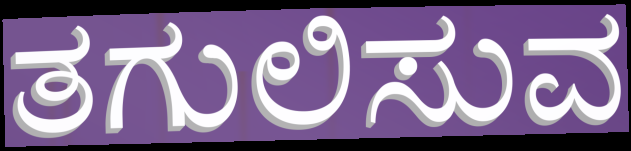
ತಗುಲಿಸುವ